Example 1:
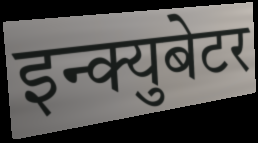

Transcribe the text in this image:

इन्क्‍युबेटर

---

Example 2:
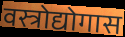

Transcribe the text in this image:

वस्त्रोद्योगास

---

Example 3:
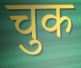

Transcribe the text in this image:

चुक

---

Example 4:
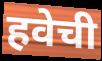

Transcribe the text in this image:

हवेची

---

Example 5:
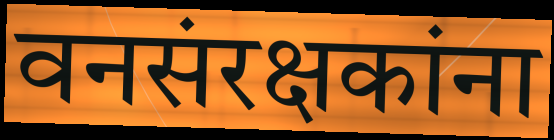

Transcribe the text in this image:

वनसंरक्षकांना